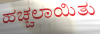
ಹಚ್ಚಲಾಯಿತು